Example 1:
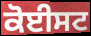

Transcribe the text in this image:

ਕੋਈਸਟ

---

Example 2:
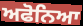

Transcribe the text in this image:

ਅਫੋਨਿਆ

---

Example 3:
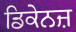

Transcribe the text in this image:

ਡਿਕੇਨਜ਼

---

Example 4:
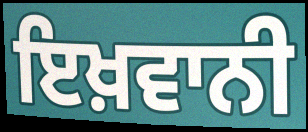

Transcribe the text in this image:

ਇਖ਼ਵਾਨੀ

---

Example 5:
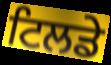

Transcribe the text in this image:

ਟਿਲਡੇ